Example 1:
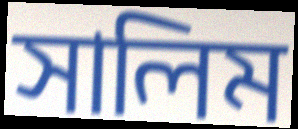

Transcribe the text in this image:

সালিম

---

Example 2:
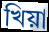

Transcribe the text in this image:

খিয়া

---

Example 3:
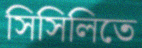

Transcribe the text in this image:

সিসিলিতে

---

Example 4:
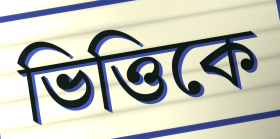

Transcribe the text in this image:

ভিত্তিকে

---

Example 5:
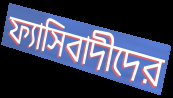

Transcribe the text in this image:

ফ্যাসিবাদীদের